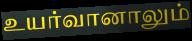
உயர்வானாலும்